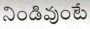
నిండివుంటే